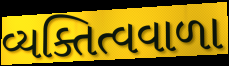
વ્યક્તિત્વવાળા